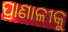
ପ୍ରାଣାଳୀକୁ